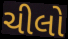
ચીલો